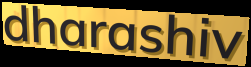
dharashiv